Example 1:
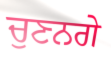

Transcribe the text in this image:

ਚੁਣਨਗੇ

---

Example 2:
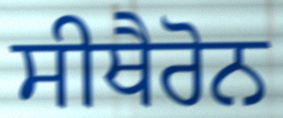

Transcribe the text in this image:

ਸੀਥੈਰੋਨ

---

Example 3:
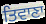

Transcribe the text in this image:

ਤਿਵਾਣਾ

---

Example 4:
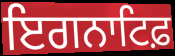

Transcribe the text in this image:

ਇਗਨਾਟਿਫ਼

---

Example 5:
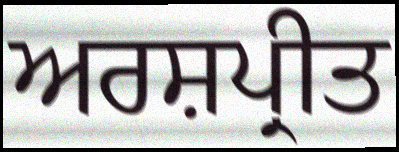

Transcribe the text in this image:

ਅਰਸ਼ਪ੍ਰੀਤ